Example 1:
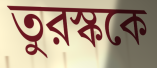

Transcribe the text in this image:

তুরস্ককে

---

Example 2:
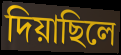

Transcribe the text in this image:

দিয়াছিলে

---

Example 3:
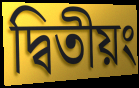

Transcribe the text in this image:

দ্বিতীয়ং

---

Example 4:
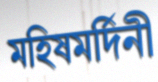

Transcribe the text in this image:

মহিষমর্দিনী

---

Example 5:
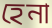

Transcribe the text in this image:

হেনা